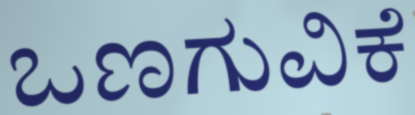
ಒಣಗುವಿಕೆ